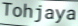
Tohjaya